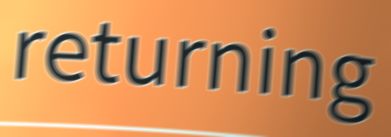
returning